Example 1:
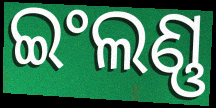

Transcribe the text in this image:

ଇଂଲଣ୍ଣ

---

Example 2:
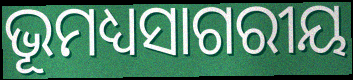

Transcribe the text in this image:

ଭୂମଧ୍ୟସାଗରୀୟ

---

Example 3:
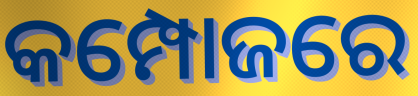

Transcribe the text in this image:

କମ୍ପୋଜରେ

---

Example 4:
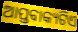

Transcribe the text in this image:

ଆପ୍ତବାକ୍ୟଟିଏ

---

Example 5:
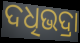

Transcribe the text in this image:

ଦଧିଭଦ୍ରା